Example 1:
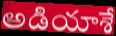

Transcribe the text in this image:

అడియాశే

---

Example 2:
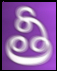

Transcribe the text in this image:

తీ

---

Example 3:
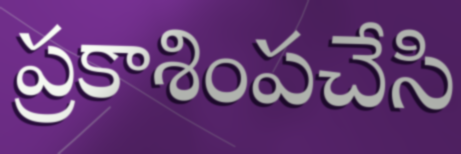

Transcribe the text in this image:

ప్రకాశింపచేసి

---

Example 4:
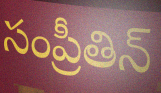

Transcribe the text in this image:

సంప్రీతిన్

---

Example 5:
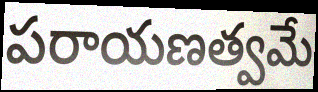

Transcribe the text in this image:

పరాయణత్వమే